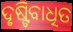
ଦୃଷ୍ଟିବାଧିତ